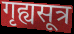
गृह्यसूत्र